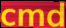
cmd